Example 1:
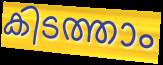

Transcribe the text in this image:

കിടത്താം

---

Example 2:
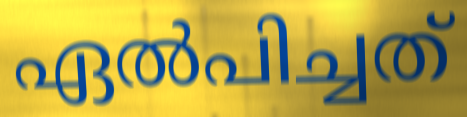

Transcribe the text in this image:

ഏൽപിച്ചത്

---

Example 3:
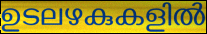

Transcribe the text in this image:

ഉടലഴകുകളിൽ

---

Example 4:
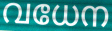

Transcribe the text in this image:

വധേന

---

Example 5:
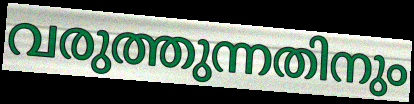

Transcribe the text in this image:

വരുത്തുന്നതിനും